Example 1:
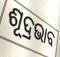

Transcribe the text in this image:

ଶୂଦ୍ରଭାବ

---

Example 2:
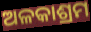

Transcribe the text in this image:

ଅଳକାଶ୍ରମ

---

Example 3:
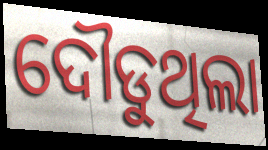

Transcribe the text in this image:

ଦୌଡୁଥିଲା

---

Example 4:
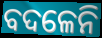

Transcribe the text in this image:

ବଦଳେନି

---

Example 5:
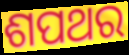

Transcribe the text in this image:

ଶପଥର